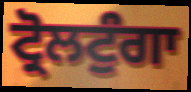
ਟ੍ਰੋਲਟੁੰਗਾ